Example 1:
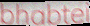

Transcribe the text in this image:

bhabtei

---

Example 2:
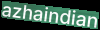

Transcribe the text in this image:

azhaindian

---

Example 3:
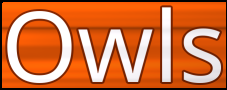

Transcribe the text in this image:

Owls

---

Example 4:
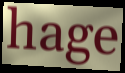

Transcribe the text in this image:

hage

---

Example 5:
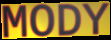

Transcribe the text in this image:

MODY